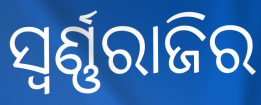
ସ୍ଵର୍ଣ୍ଣରାଜିର